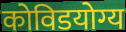
कोविडयोग्य